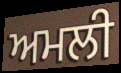
ਅਮਲੀ